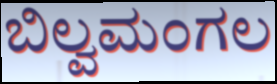
ಬಿಲ್ವಮಂಗಲ